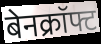
बेनक्रॉफ्ट